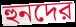
হুনদের